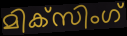
മിക്‌സിംഗ്